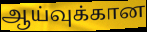
ஆய்வுக்கான